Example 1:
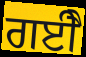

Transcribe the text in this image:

ਗਈੈ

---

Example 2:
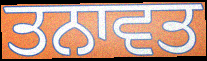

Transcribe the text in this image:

ਤਨਾਵਤ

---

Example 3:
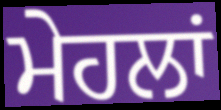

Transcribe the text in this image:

ਮੇਹਲਾਂ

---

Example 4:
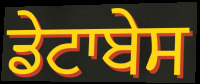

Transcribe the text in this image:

ਡੇਟਾਬੇਸ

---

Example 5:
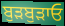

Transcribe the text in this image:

ਬੁੜਬੁੜਾਓ